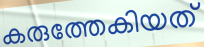
കരുത്തേകിയത്